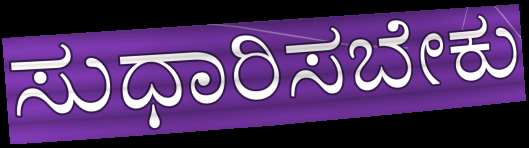
ಸುಧಾರಿಸಬೇಕು